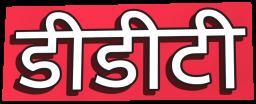
डीडीटी